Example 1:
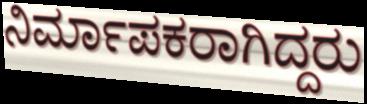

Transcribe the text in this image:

ನಿರ್ಮಾಪಕರಾಗಿದ್ದರು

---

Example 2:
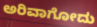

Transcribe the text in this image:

ಅರಿವಾಗೋದು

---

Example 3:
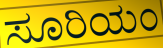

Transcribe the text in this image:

ಸೂರಿಯಂ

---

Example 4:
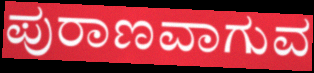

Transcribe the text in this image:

ಪುರಾಣವಾಗುವ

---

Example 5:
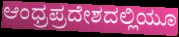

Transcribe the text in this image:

ಆಂಧ್ರಪ್ರದೇಶದಲ್ಲಿಯೂ